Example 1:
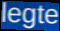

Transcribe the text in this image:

legte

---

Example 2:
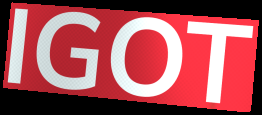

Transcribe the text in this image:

IGOT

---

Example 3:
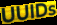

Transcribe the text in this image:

UUIDs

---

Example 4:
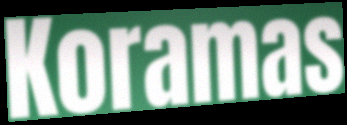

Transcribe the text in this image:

Koramas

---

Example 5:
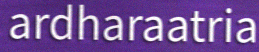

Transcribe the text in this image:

ardharaatria